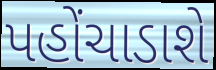
પહોંચાડાશે